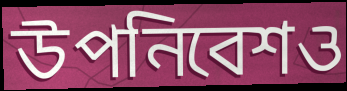
উপনিবেশও